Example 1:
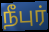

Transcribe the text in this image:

நீபுர்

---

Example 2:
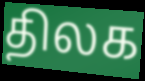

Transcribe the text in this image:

திலக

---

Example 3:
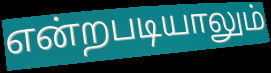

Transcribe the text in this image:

என்றபடியாலும்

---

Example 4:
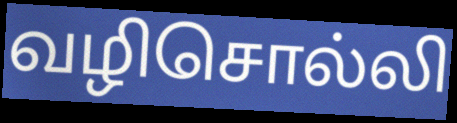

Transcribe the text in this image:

வழிசொல்லி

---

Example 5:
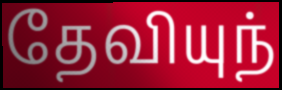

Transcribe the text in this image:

தேவியுந்